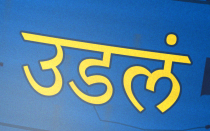
उडलं